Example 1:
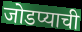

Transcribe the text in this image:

जोडप्याची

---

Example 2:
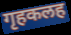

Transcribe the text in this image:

गृहकलह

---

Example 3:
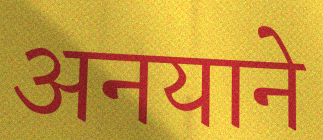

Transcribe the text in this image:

अनयाने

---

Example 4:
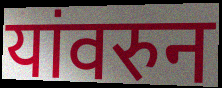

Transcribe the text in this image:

यांवरुन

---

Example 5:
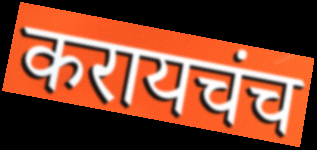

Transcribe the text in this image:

करायचंच